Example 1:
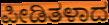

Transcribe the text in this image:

ಪೀಡಿತಳಾದ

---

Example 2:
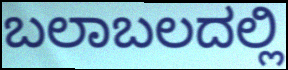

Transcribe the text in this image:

ಬಲಾಬಲದಲ್ಲಿ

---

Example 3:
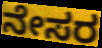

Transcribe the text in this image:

ನೇಸರ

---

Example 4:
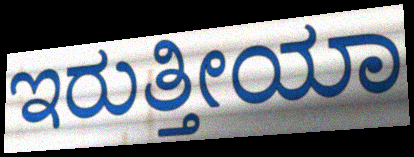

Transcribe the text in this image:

ಇರುತ್ತೀಯಾ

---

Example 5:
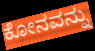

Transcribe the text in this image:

ಕೋನವನ್ನು